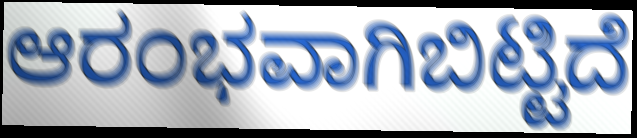
ಆರಂಭವಾಗಿಬಿಟ್ಟಿದೆ